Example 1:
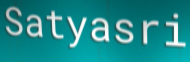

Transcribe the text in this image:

Satyasri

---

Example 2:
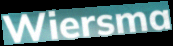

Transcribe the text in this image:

Wiersma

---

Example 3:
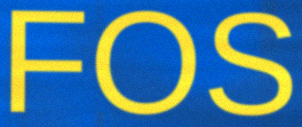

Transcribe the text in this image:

FOS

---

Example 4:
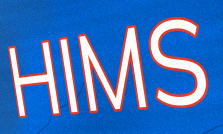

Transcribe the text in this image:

HIMS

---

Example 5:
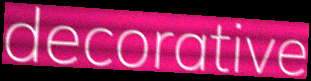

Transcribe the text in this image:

decorative